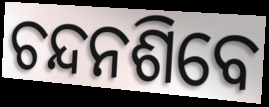
ଚନ୍ଦନଶିବେ